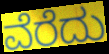
ವೆರೆದು